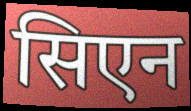
सिएन